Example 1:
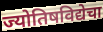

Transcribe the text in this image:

ज्योतिषविद्येचा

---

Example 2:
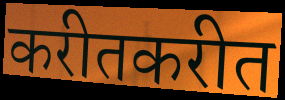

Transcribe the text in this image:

करीतकरीत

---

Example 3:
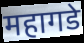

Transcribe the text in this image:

महागडे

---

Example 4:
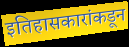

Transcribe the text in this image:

इतिहासकारांकडून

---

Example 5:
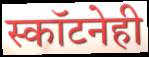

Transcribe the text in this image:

स्कॉटनेही